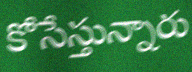
కోసేస్తున్నారు